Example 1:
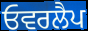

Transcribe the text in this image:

ਓਵਰਲੈਪ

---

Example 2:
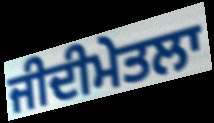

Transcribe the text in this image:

ਜੀਦੀਮੇਤਲਾ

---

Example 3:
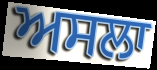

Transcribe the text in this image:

ਅਸਲਾ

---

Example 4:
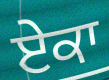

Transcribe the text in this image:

ਏਕਾ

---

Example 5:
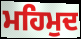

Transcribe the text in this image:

ਮਹਿਮੁਦ